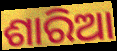
ଶାରିଆ